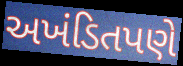
અખંડિતપણે